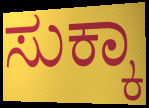
ಸುಕ್ಕಾ